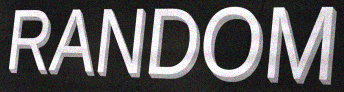
RANDOM